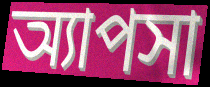
অ্যাপসা